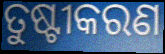
ତୁଷ୍ଟୀକରଣ